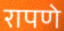
रापणे